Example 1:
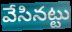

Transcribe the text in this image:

వేసినట్టు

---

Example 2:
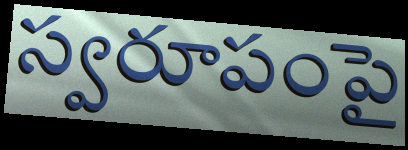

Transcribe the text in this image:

స్వరూపంపై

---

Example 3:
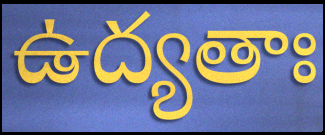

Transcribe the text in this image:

ఉద్యతాః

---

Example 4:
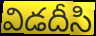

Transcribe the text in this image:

విడదీసి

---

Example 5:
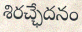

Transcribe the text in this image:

శిరచ్ఛేదనం